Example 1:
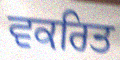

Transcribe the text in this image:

ਵਕਰਿਤ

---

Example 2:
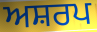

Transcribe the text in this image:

ਅਸ਼ਰਪ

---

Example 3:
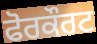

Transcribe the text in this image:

ਫੋਰਕੌਰਟ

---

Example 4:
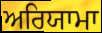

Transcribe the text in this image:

ਅਰਿਯਾਮਾ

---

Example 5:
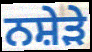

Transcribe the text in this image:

ਨਸ਼ੇੜੇ